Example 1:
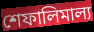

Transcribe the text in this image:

শেফালিমাল্য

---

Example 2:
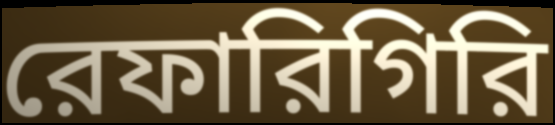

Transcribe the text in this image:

রেফারিগিরি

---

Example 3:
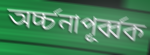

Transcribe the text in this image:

অর্চ্চনাপূর্ব্বক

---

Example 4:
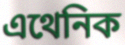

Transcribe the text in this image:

এথেনিক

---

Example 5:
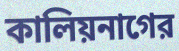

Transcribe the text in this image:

কালিয়নাগের